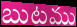
బుటము